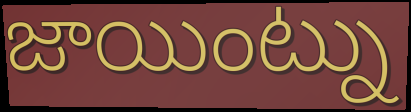
జాయింట్ను